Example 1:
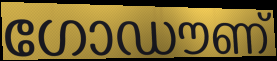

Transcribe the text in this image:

ഗോഡൗണ്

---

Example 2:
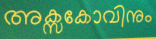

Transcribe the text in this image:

അക്സകോവിനും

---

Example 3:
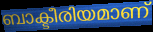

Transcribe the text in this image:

ബാക്ടീരിയമാണ്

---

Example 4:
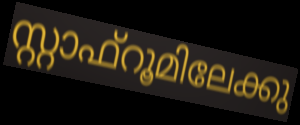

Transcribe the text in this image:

സ്റ്റാഫ്റൂമിലേക്കു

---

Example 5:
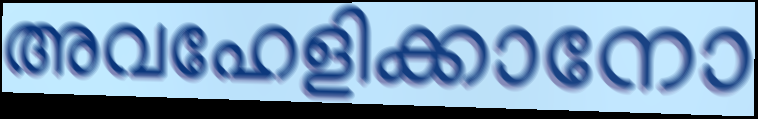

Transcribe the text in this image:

അവഹേളിക്കാനോ